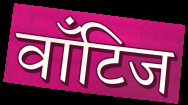
वाँटिज